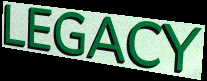
LEGACY